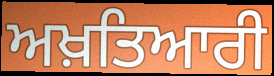
ਅਖ਼ਤਿਆਰੀ